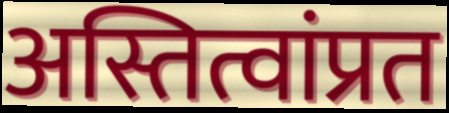
अस्तित्वांप्रत